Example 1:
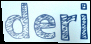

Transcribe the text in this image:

deri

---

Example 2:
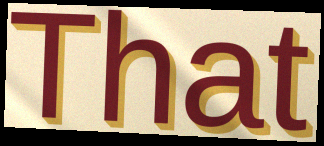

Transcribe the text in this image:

That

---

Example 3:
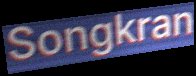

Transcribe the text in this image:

Songkran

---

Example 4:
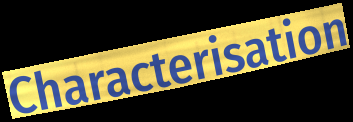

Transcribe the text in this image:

Characterisation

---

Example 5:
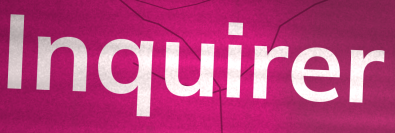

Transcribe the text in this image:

Inquirer